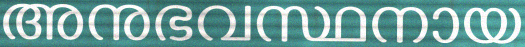
അനുഭവസ്ഥനായ